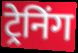
ट्रेनिंग